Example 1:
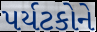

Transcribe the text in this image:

પર્યટકોને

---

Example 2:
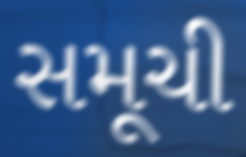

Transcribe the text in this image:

સમૂચી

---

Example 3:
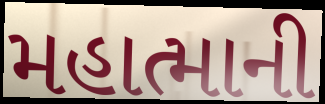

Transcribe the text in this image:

મહાત્માની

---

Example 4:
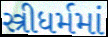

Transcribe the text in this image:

સ્ત્રીધર્મમાં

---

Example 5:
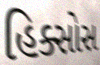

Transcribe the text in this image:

હિક્સોસ